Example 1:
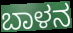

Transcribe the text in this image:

ಬಾಳನ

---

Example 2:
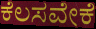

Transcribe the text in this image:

ಕೆಲಸವೇಕೆ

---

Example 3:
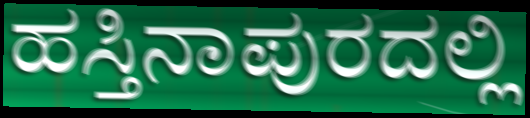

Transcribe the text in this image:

ಹಸ್ತಿನಾಪುರದಲ್ಲಿ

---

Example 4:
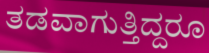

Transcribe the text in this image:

ತಡವಾಗುತ್ತಿದ್ದರೂ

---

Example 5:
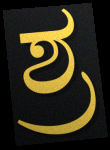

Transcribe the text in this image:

ಶ್ರ